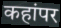
कहांपर